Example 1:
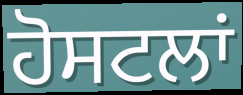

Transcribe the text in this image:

ਹੋਸਟਲਾਂ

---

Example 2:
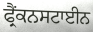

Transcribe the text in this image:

ਫ੍ਰੈਂਕਨਸਟਾਈਨ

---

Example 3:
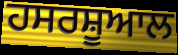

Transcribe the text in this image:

ਹਸਰਸ਼ੂਆਲ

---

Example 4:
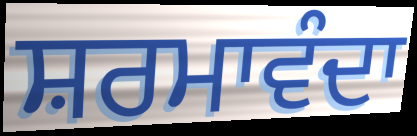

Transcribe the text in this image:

ਸ਼ਰਮਾਵੰਦਾ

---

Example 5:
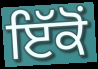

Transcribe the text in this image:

ਇੱਕੋਂ